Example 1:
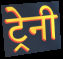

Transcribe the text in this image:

ट्रेनी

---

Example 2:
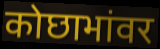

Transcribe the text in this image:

कोछाभांवर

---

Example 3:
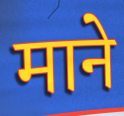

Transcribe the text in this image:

माने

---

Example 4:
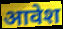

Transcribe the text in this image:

आवेश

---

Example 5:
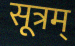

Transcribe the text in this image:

सूत्रम्